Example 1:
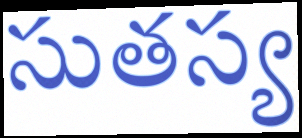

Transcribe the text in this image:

సుతస్య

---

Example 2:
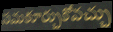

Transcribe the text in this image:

సమకూర్చుకోవచ్చు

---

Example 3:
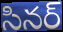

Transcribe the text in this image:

సినర్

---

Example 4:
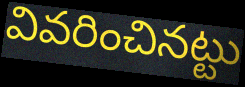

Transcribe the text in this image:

వివరించినట్టు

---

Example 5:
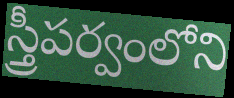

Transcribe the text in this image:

స్త్రీపర్వంలోని